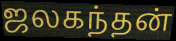
ஜலகந்தன்